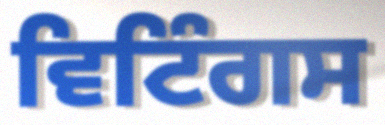
ਵਿਟਿੰਗਸ